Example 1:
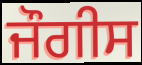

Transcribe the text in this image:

ਜੌਗੀਸ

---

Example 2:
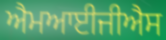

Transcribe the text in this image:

ਐਮਆਈਜੀਐਸ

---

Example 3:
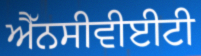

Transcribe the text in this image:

ਐੱਨਸੀਵੀਈਟੀ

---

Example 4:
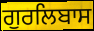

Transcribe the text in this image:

ਗੁਰਲਿਬਾਸ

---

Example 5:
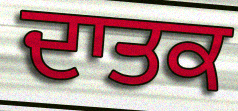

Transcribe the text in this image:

ਦਾਤਕ